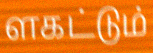
ளகட்டும்